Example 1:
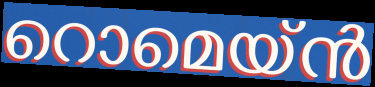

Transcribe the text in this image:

റൊമെയ്ൻ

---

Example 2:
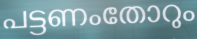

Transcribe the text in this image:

പട്ടണംതോറും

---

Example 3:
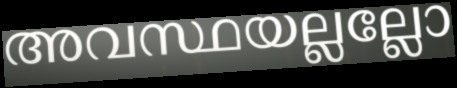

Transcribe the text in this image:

അവസ്ഥയല്ലല്ലോ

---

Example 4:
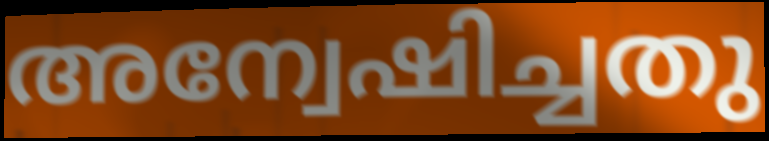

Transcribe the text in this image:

അന്വേഷിച്ചതു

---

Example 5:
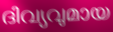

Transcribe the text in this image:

ദിവ്യവുമായ